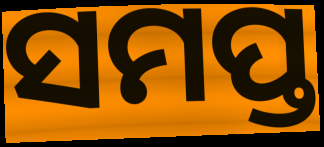
ସମପ୍ତ